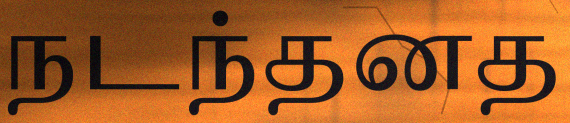
நடந்தனத